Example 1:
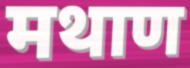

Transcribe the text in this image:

मथाण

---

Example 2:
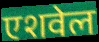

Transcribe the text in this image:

एशवेल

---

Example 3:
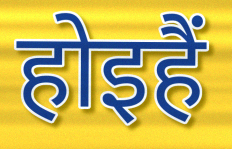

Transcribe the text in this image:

होइहैं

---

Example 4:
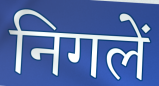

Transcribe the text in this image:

निगलें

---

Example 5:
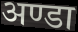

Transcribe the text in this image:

अण्डा